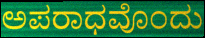
ಅಪರಾಧವೊಂದು